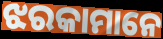
ଝରକାମାନେ